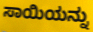
ಸಾಯಿಯನ್ನು